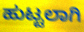
ಹುಟ್ಟಲಾಗಿ